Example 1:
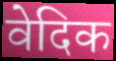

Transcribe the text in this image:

वेदिक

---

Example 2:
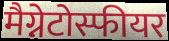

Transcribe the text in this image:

मैग्नेटोस्फीयर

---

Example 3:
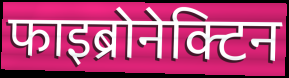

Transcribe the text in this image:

फाइब्रोनेक्टिन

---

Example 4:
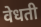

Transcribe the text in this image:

वेधती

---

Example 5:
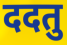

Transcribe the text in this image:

ददतु